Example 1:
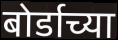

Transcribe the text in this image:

बोर्डाच्या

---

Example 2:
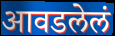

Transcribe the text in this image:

आवडलेलं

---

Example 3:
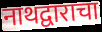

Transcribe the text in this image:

नाथद्वाराचा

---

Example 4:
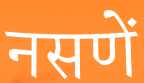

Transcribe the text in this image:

नसणें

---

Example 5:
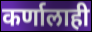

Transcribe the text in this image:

कर्णालाही